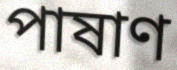
পাষাণ